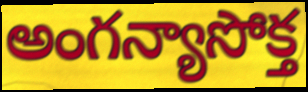
అంగన్యాసోక్త